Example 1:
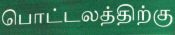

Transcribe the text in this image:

பொட்டலத்திற்கு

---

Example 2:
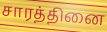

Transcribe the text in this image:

சாரத்தினை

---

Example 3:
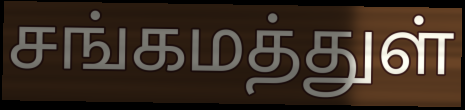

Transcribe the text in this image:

சங்கமத்துள்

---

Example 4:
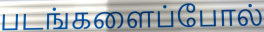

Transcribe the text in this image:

படங்களைப்போல்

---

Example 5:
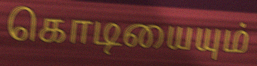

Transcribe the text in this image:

கொடியையும்